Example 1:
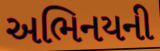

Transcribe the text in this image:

અભિનયની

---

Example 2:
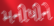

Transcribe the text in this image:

મનીષીને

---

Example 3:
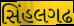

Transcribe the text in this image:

સિંહલગઢ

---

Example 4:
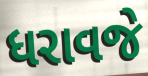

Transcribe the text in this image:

ધરાવજે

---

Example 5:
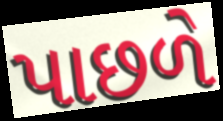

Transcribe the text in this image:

પાછળે